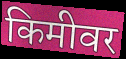
किमीवर